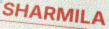
SHARMILA